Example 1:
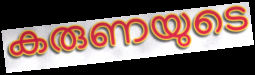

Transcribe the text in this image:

കരുണയുടെ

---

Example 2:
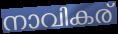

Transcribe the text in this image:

നാവികര്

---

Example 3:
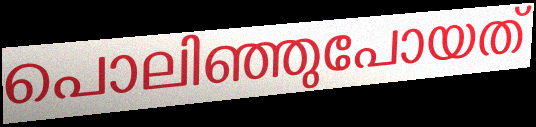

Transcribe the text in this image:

പൊലിഞ്ഞുപോയത്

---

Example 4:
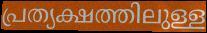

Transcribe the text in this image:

പ്രത്യക്ഷത്തിലുള്ള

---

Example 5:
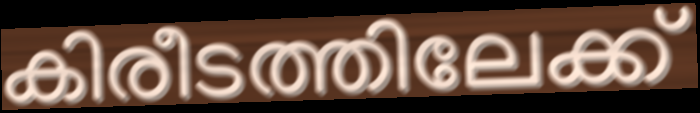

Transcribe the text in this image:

കിരീടത്തിലേക്ക്